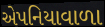
એપનિયાવાળા